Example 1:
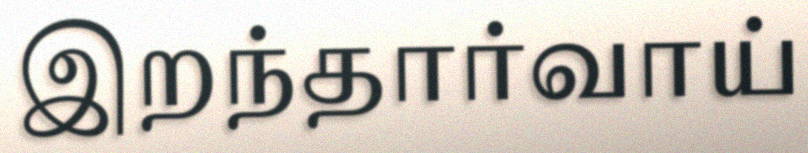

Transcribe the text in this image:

இறந்தார்வாய்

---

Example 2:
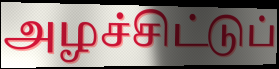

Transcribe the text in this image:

அழச்சிட்டுப்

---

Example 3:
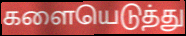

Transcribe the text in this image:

களையெடுத்து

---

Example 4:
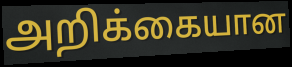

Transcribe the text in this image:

அறிக்கையான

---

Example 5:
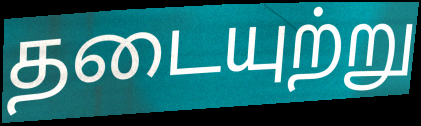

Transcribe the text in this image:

தடையுற்று